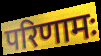
परिणामः